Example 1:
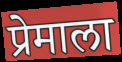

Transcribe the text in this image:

प्रेमाला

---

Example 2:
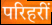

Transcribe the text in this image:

परिहरीं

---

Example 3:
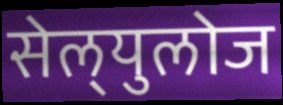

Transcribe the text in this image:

सेल्युलोज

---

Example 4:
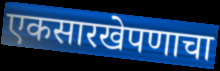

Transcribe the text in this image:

एकसारखेपणाचा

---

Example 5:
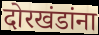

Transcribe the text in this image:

दोरखंडांना